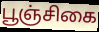
பூஞ்சிகை